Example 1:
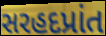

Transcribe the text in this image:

સરહદપ્રાંત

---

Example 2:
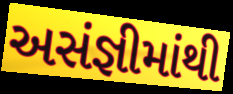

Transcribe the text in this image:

અસંજ્ઞીમાંથી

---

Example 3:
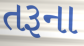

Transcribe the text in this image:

તરૂના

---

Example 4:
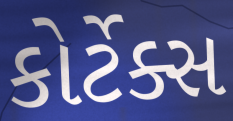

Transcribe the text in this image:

કોર્ટેક્સ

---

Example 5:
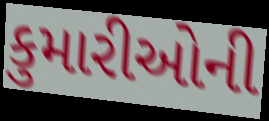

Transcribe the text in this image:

કુમારીઓની